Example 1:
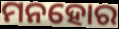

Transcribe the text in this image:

ମନହୋର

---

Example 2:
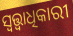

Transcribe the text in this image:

ସ୍ବତ୍ତ୍ବାଧିକାରୀ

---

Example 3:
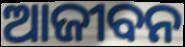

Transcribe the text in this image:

ଆଜୀବନ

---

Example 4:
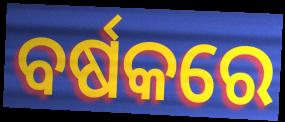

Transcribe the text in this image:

ବର୍ଷକରେ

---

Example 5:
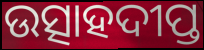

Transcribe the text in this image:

ଉତ୍ସାହଦୀପ୍ତ